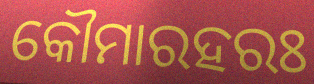
କୌମାରହରଃ